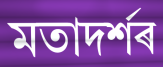
মতাদৰ্শৰ